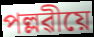
পল্লৱীয়ে